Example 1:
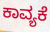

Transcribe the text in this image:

ಕಾವ್ಯಕೆ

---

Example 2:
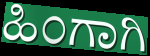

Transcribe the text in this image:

ಹಿಂಗಾಗಿ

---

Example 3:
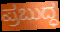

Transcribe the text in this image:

ಪ್ರಬುದ್ಧ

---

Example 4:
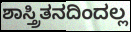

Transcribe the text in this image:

ಶಾಸ್ತ್ರಿತನದಿಂದಲ್ಲ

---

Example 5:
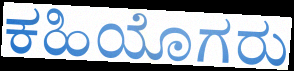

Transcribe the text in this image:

ಕಹಿಯೊಗರು